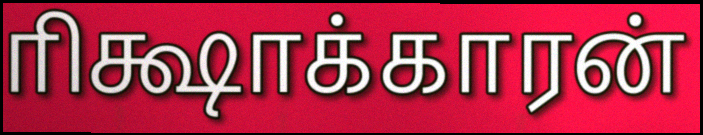
ரிக்ஷாக்காரன்